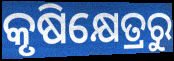
କୃଷିକ୍ଷେତ୍ରରୁ